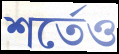
শর্তেও